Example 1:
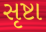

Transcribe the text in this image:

સૃષ્ટા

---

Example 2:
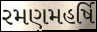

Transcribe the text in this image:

રમણમહર્ષિ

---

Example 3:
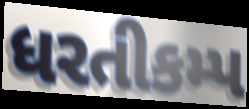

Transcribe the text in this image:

ધરતીકમ્પ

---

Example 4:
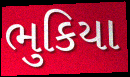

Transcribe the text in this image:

ભુકિયા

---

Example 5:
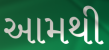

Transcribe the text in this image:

આમથી